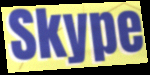
Skype